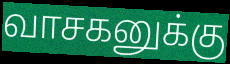
வாசகனுக்கு